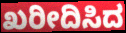
ಖರೀದಿಸಿದ